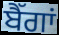
ਬੈੱਗਾਂ